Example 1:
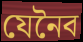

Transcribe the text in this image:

যেনৈব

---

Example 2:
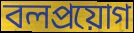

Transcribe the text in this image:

বলপ্রয়োগ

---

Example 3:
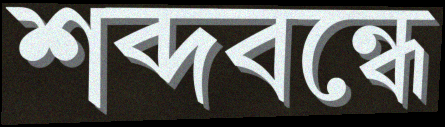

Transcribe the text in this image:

শব্দবন্ধে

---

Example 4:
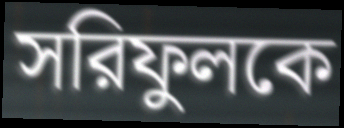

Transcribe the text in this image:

সরিফুলকে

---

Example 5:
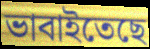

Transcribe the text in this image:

ভাবাইতেছে